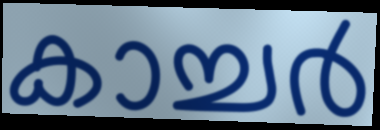
കാച്ചർ